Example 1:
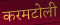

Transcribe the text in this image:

करमटोली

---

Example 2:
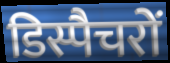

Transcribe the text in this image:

डिस्पैचरों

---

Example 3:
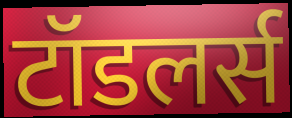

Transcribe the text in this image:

टॉडलर्स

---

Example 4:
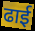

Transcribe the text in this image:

ढाई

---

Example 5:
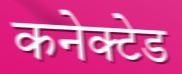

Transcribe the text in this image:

कनेक्टेड